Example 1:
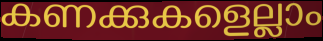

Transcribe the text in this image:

കണക്കുകളെല്ലാം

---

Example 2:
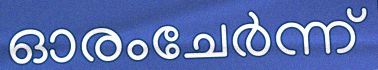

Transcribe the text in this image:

ഓരംചേർന്ന്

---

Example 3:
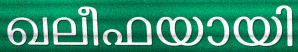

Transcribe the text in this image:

ഖലീഫയായി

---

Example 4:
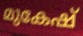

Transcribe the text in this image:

മുകേഷ്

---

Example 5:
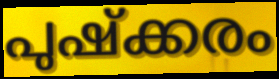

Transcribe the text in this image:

പുഷ്ക്കരം